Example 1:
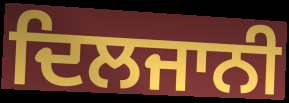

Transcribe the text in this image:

ਦਿਲਜਾਨੀ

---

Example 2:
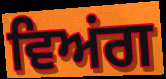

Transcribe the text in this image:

ਵਿਅਂਗ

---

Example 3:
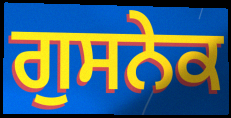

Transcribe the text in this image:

ਗੁਸਨੇਕ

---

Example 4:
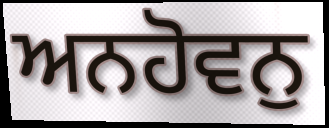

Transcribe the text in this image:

ਅਨਹੋਵਨੁ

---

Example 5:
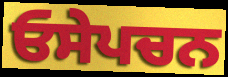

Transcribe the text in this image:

ਓਸੇਪਚਨ